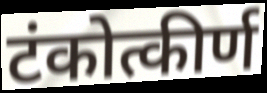
टंकोत्कीर्ण